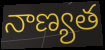
నాణ్యత